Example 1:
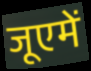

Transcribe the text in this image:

जूएमें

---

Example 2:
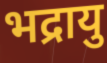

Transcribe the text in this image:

भद्रायु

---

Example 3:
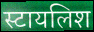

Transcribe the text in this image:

स्टायलिश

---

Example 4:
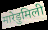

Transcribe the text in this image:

मारेडुमिली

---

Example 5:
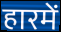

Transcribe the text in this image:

हारमें